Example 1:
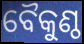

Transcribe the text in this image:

ବୈକୁଣ୍ଠ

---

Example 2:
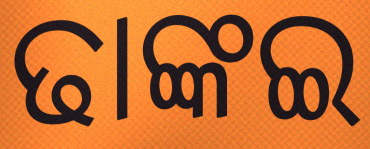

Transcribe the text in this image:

ଢାଙ୍କଇ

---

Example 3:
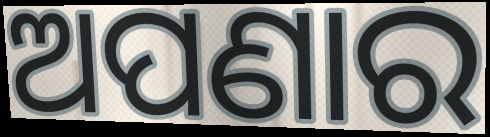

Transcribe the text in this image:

ଅପଣାର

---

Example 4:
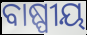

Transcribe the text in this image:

ବାଷ୍ପୀୟ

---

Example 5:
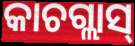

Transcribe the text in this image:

କାଚଗ୍ଲାସ୍